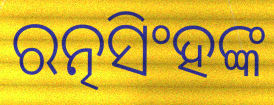
ରତ୍ନସିଂହଙ୍କ